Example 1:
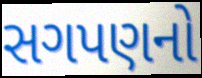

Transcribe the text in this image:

સગપણનો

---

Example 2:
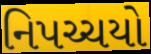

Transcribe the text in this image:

નિપચ્ચયો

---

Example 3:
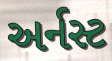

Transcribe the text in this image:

અર્નસ્ટ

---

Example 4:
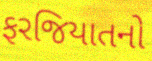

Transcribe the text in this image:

ફરજિયાતનો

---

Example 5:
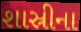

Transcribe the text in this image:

શાસ્રીના